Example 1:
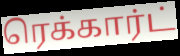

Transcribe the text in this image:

ரெக்கார்ட்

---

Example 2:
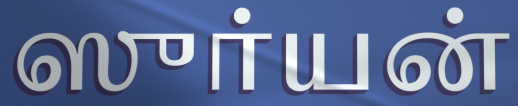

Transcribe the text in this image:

ஸுர்யன்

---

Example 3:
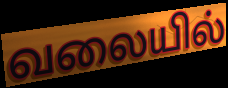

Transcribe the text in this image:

வலையில்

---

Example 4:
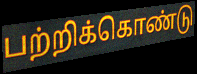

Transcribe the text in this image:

பற்றிக்கொண்டு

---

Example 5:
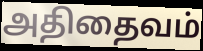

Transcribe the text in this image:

அதிதைவம்